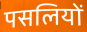
पसलियों